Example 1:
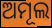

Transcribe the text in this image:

ଅମୂଲ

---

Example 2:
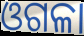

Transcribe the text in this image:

ଓଗଳା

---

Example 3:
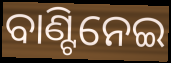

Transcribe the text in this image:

ବାଣ୍ଟିନେଇ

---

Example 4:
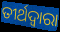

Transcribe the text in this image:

ତୀର୍ଥଦ୍ବାରା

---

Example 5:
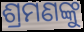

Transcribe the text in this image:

ଶ୍ରମଣଙ୍କୁ